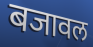
बजावल